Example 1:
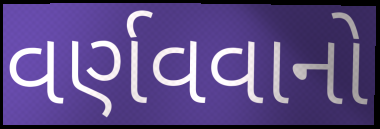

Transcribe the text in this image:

વર્ણવવાનો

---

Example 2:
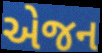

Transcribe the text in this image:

એજન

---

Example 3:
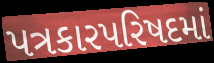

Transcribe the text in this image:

પત્રકારપરિષદમાં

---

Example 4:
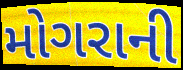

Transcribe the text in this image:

મોગરાની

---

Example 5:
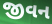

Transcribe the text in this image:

જીવન